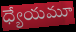
ధ్యేయమూ